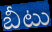
బీటు